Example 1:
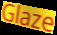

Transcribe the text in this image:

Glaze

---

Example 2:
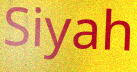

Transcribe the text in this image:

Siyah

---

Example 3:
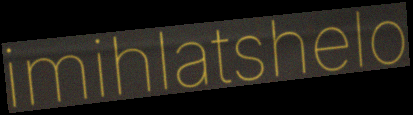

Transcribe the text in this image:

imihlatshelo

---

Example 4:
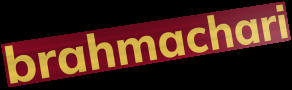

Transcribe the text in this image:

brahmachari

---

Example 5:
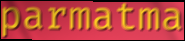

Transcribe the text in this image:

parmatma